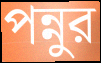
পন্নুর